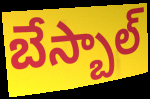
బేస్బాల్